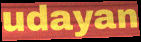
udayan